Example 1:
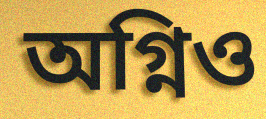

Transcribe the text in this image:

অগ্নিও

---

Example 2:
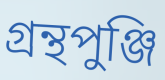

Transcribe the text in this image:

গ্রন্থপুঞ্জি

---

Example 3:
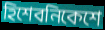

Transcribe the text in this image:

হিশেবনিকেশে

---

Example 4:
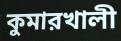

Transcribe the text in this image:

কুমারখালী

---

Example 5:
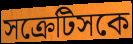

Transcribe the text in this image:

সক্রেটিসকে